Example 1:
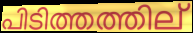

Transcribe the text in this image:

പിടിത്തത്തില്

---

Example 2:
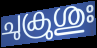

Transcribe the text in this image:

ചുക്രുശുഃ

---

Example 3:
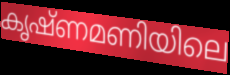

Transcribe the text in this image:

കൃഷ്ണമണിയിലെ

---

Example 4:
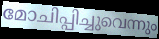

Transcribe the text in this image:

മോചിപ്പിച്ചുവെന്നും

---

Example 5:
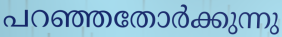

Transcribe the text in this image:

പറഞ്ഞതോർക്കുന്നു